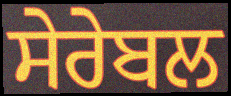
ਸੇਰੇਬਲ